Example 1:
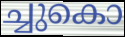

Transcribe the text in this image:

ച്ചുകൊ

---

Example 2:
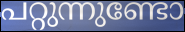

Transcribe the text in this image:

പറ്റുന്നുണ്ടോ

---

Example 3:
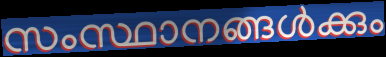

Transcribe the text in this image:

സംസ്ഥാനങ്ങൾക്കും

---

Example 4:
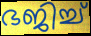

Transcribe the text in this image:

ഭജിച്ച്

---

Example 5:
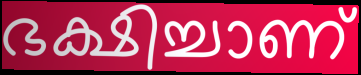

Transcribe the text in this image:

ഭക്ഷിച്ചാണ്